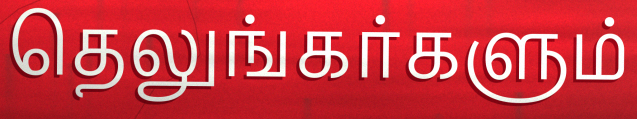
தெலுங்கர்களும்